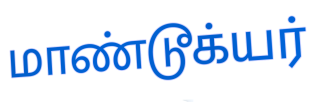
மாண்டூக்யர்